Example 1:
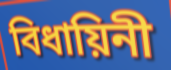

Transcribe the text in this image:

বিধায়িনী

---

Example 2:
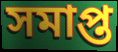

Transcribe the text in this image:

সমাপ্ত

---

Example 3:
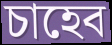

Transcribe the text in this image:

চাহেব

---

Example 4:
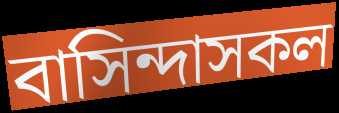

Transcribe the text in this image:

বাসিন্দাসকল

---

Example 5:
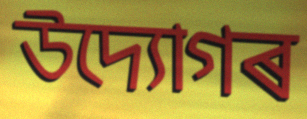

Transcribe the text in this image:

উদ্যোগৰ